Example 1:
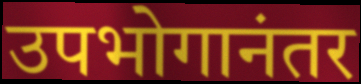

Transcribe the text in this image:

उपभोगानंतर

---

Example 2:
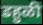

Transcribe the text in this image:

डहुळी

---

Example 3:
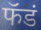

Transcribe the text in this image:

फॅडं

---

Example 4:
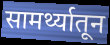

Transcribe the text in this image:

सामर्थ्यातून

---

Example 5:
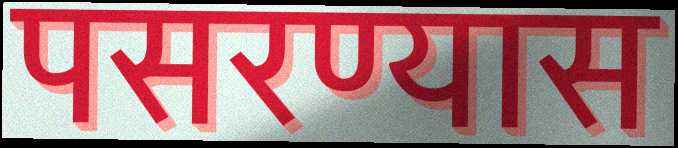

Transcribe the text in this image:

पसरण्यास